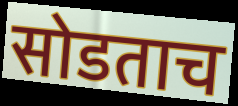
सोडताच